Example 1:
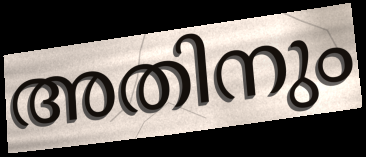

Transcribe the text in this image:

അതിനും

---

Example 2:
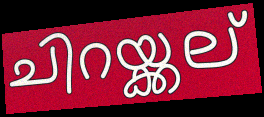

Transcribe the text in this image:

ചിറയ്ക്കല്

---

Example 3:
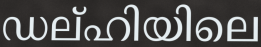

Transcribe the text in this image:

ഡല്ഹിയിലെ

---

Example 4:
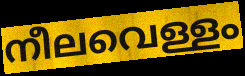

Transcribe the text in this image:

നീലവെള്ളം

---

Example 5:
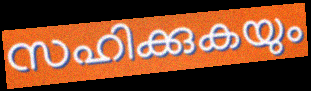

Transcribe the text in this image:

സഹിക്കുകയും